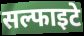
सल्फाइटे